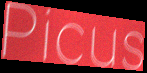
Picus